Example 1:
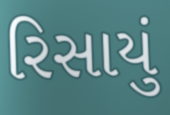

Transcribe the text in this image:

રિસાયું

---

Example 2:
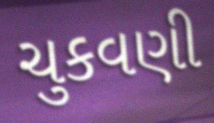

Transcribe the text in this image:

ચુકવણી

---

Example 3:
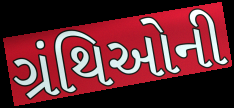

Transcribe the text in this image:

ગ્રંથિઓની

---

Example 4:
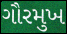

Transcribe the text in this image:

ગૌરમુખ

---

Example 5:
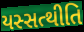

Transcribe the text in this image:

યસ્સત્થીતિ